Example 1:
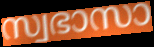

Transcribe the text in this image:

സ്വഭാസാ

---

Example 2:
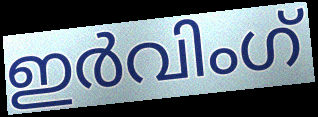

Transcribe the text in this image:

ഇർവിംഗ്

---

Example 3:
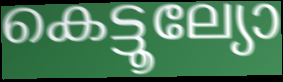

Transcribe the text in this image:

കെട്ടൂല്യോ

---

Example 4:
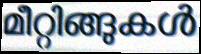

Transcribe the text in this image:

മീറ്റിങ്ങുകൾ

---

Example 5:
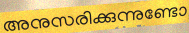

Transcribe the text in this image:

അനുസരിക്കുന്നുണ്ടോ